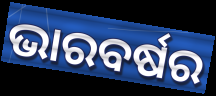
ଭାରବର୍ଷର